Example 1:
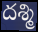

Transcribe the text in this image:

దశ్మి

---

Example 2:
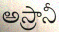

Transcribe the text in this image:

అస్రానీ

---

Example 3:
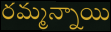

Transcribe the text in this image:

రమ్మన్నాయి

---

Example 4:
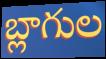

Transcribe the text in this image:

బ్లాగుల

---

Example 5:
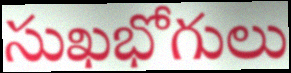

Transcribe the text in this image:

సుఖభోగులు